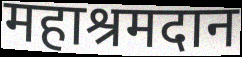
महाश्रमदान